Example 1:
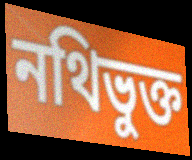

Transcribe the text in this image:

নথিভুক্ত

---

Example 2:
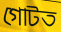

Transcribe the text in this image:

গোটত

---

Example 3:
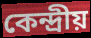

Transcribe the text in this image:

কেন্দ্ৰীয়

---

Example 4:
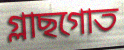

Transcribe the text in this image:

গ্লাছগোত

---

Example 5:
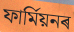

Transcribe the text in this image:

ফাৰ্মিয়নৰ